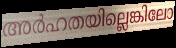
അർഹതയില്ലെങ്കിലോ